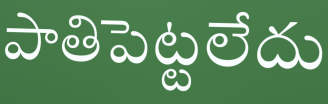
పాతిపెట్టలేదు